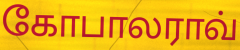
கோபாலராவ்